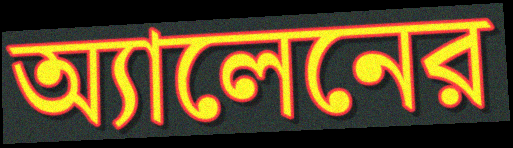
অ্যালেনের